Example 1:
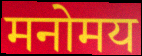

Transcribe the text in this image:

मनोमय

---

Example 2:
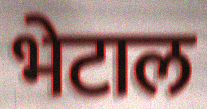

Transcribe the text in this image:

भेटाल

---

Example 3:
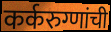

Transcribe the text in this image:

कर्करुग्णांची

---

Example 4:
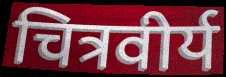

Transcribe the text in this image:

चित्रवीर्य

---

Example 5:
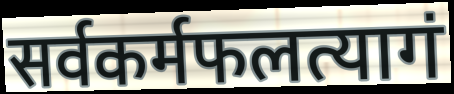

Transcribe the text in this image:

सर्वकर्मफलत्यागं